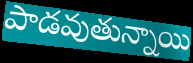
పాడవుతున్నాయి